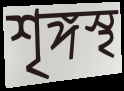
শৃঙ্গস্থ